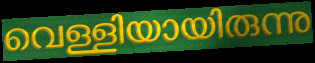
വെള്ളിയായിരുന്നു